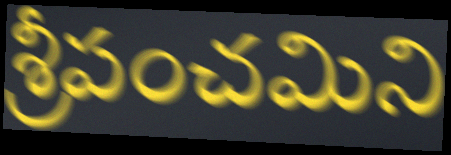
శ్రీపంచమిని